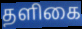
தளிகை